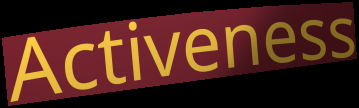
Activeness